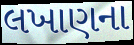
લખાણના